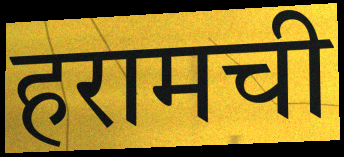
हरामची